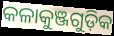
କଳାକୁଞ୍ଜଗୁଡ଼ିକ